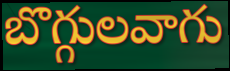
బొగ్గులవాగు